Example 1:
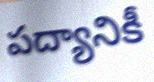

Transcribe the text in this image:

పద్యానికీ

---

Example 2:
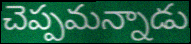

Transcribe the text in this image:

చెప్పమన్నాడు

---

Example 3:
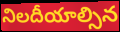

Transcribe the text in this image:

నిలదీయాల్సిన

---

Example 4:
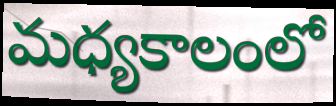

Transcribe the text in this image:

మధ్యకాలంలో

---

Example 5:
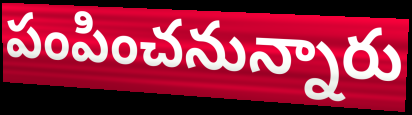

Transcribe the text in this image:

పంపించనున్నారు